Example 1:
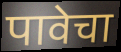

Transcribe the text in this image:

पावेचा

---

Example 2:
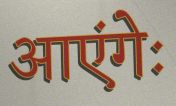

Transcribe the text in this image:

आएंगेः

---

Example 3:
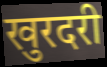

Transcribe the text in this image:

खुरदरी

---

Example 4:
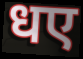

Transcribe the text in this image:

धए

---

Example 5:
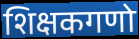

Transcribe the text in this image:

शिक्षकगणो